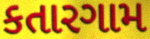
કતારગામ